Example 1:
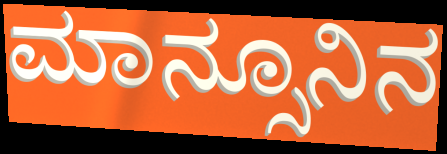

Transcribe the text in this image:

ಮಾನ್ಸೂನಿನ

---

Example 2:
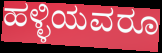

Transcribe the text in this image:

ಹಳ್ಳಿಯವರೂ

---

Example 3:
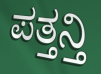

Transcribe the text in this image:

ಪತ್ತನ್ತಿ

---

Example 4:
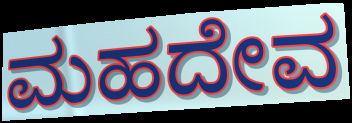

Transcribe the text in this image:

ಮಹದೇವ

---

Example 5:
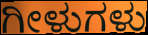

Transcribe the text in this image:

ಗೀಳುಗಳು